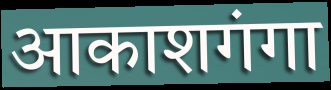
आकाशगंगा